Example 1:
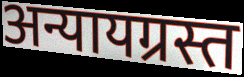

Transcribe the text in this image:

अन्यायग्रस्त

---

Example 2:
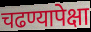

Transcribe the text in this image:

चढण्यापेक्षा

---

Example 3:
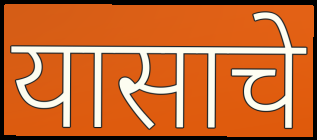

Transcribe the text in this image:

यासाचे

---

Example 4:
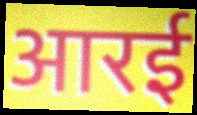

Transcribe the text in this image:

आरई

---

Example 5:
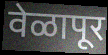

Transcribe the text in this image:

वेळापूर